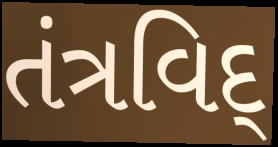
તંત્રવિદ્